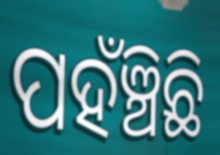
ପହଁଞ୍ଚିଛି